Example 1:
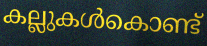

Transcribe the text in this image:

കല്ലുകൾകൊണ്ട്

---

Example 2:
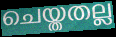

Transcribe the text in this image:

ചെയ്തതല്ല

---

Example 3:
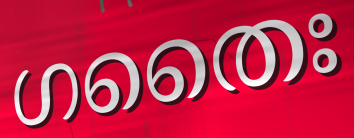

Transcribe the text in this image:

ഗതൈഃ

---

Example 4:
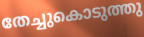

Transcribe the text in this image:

തേച്ചുകൊടുത്തു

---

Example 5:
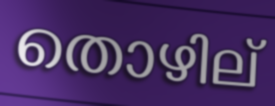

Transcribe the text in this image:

തൊഴില്